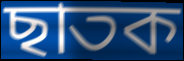
ছাতক